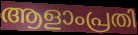
ആളാംപ്രതി